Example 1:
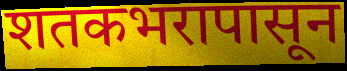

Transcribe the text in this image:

शतकभरापासून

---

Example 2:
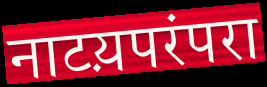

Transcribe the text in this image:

नाटय़परंपरा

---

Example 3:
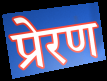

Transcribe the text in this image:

प्रेरण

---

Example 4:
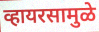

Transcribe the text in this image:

व्हायरसामुळे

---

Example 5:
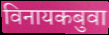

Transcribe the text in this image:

विनायकबुवा